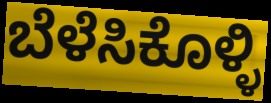
ಬೆಳೆಸಿಕೊಳ್ಳಿ